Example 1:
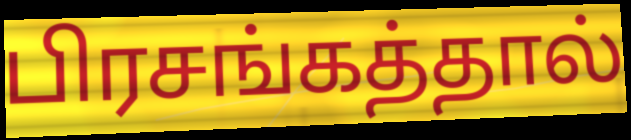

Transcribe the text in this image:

பிரசங்கத்தால்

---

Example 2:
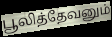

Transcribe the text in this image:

பூலித்தேவனும்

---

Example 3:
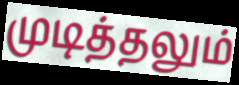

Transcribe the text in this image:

முடித்தலும்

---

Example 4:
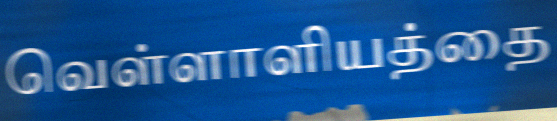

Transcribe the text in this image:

வெள்ளாளியத்தை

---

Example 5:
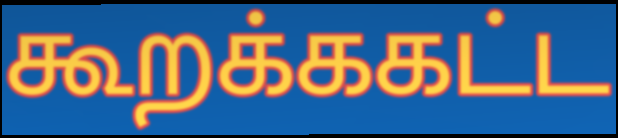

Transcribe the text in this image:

கூறக்ககட்ட